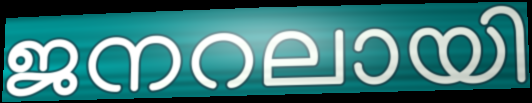
ജനറലായി